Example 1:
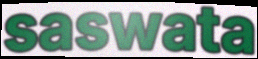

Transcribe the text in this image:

saswata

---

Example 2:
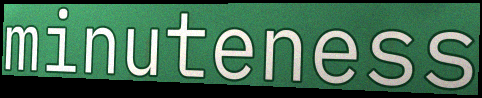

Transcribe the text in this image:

minuteness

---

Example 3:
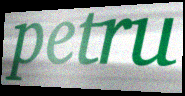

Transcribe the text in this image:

petru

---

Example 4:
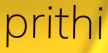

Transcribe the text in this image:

prithi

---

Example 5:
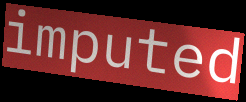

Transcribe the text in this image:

imputed